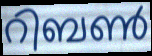
റിബൺ